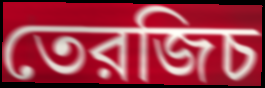
তেরজিচ